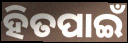
ହିତପାଇଁ